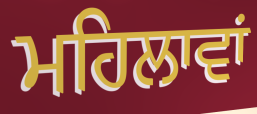
ਮਹਿਲਾਵਾਂ